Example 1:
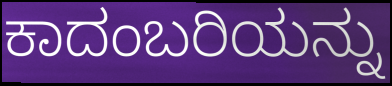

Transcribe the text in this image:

ಕಾದಂಬರಿಯನ್ನು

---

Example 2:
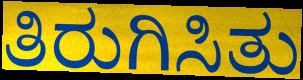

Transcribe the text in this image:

ತಿರುಗಿಸಿತು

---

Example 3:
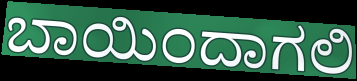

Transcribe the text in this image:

ಬಾಯಿಂದಾಗಲಿ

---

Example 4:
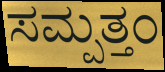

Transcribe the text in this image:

ಸಮ್ಪತ್ತಂ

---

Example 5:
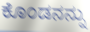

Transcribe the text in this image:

ಕೊಂಡನನ್ನು